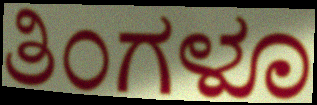
ತಿಂಗಳೂ